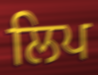
ਲਿਪ